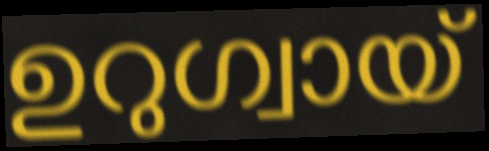
ഉറുഗ്വായ്